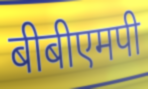
बीबीएमपी